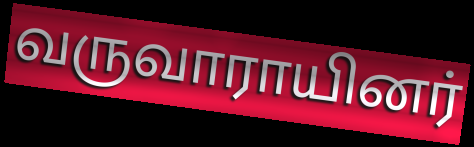
வருவாராயினர்